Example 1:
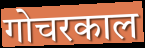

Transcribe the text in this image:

गोचरकाल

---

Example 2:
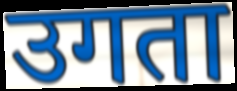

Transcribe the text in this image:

उगता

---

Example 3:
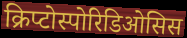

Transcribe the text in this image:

क्रिप्टोस्पोरिडिओसिस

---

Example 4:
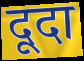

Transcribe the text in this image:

दूदा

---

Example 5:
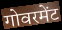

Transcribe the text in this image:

गोवरमेंट